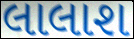
લાલાશ